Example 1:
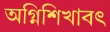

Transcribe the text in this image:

অগ্নিশিখাবৎ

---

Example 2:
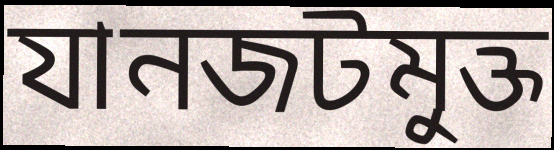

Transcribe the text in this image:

যানজটমুক্ত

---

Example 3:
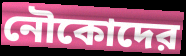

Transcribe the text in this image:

নৌকোদের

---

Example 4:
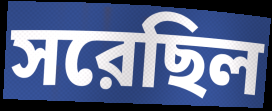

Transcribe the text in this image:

সরেছিল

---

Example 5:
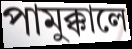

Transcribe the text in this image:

পামুক্কালে